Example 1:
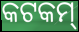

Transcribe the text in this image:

କଟକମ୍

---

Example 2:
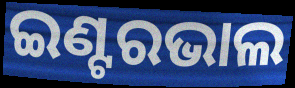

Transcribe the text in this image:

ଇଣ୍ଟରଭାଲ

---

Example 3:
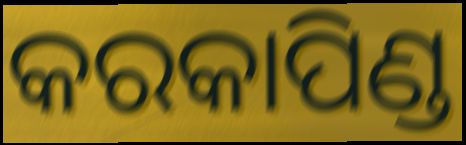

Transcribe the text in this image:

କରକାପିଣ୍ଡ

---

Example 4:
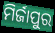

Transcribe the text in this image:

ମିର୍ଜାପୁର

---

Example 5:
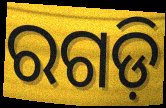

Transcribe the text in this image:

ରଗଡ଼ି